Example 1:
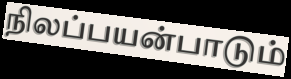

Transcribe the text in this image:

நிலப்பயன்பாடும்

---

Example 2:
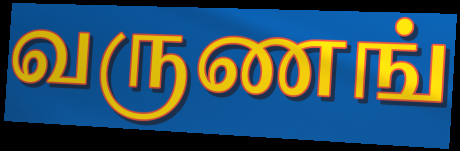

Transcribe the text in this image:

வருணங்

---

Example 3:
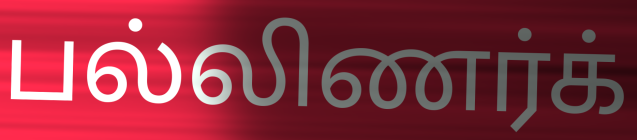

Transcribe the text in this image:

பல்லிணர்க்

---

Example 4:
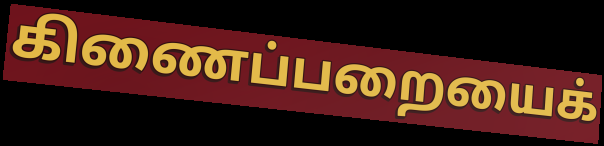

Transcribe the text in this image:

கிணைப்பறையைக்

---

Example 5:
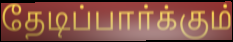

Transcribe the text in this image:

தேடிப்பார்க்கும்